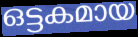
ഒട്ടകമായ